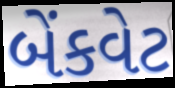
બેંકવેટ